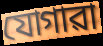
যোগাৱা